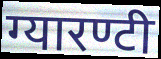
ग्यारण्टी